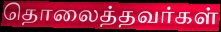
தொலைத்தவர்கள்